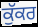
ਕੁੱਕਰ